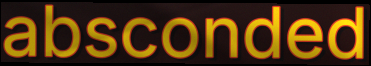
absconded